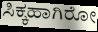
ಸಿಕ್ಕಹಾಗಿರೋ